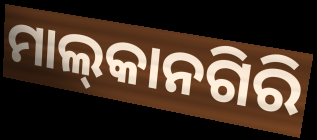
ମାଲ୍‌କାନଗିରି